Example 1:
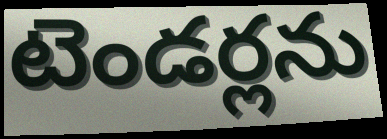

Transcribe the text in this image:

టెండర్లను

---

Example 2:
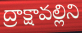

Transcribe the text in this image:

ద్రాక్షావల్లిని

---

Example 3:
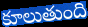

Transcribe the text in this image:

కూలుతుంది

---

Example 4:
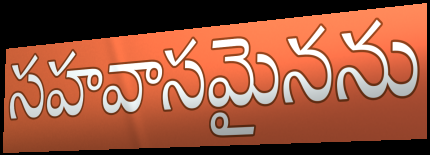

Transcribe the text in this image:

సహవాసమైనను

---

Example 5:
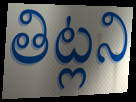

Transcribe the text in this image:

తిట్లని